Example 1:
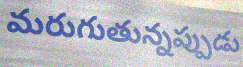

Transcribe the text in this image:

మరుగుతున్నప్పుడు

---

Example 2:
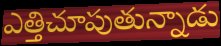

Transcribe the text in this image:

ఎత్తిచూపుతున్నాడు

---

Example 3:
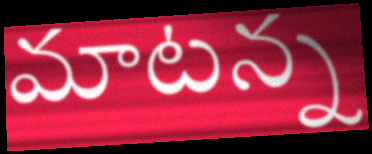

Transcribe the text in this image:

మాటన్న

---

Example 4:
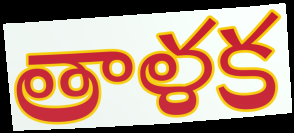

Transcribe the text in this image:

తాళక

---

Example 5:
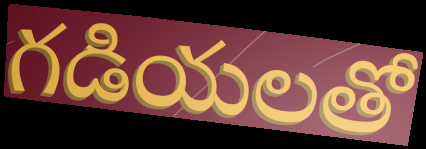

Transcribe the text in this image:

గడియలతో